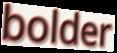
bolder